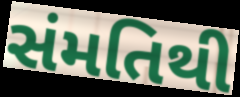
સંમતિથી